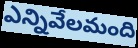
ఎన్నివేలమంది